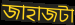
জাহাজটা